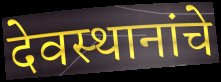
देवस्थानांचे